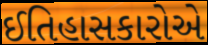
ઈતિહાસકારોએ